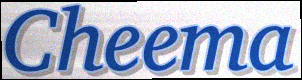
Cheema